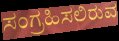
ಸಂಗ್ರಹಿಸಲಿರುವ